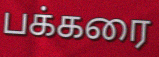
பக்கரை